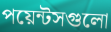
পয়েন্টসগুলো